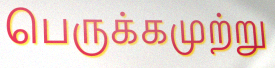
பெருக்கமுற்று